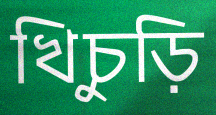
খিচুড়ি